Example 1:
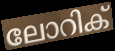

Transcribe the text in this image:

ലോറിക്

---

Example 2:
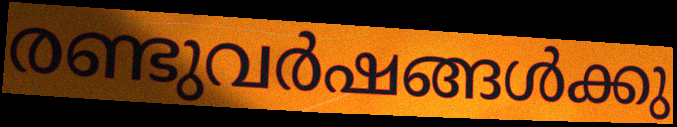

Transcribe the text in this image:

രണ്ടുവർഷങ്ങൾക്കു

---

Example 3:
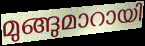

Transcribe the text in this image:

മുങ്ങുമാറായി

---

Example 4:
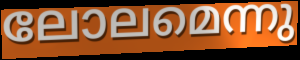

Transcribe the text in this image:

ലോലമെന്നു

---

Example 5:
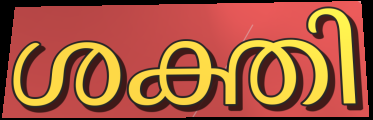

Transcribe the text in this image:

ശക്തി